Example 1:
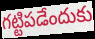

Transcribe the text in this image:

గట్టిపడేందుకు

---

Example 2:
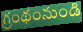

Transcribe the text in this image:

గ్రంథంనుండి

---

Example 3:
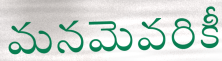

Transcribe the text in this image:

మనమెవరికీ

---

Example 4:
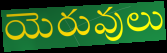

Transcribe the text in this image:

యెరువులు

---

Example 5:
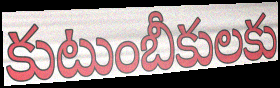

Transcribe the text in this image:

కుటుంబీకులకు